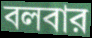
বলবার